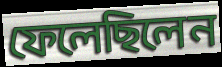
ফেলেছিলেন